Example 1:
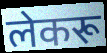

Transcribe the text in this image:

लेकरू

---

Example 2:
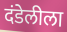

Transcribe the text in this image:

दंडेलीला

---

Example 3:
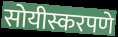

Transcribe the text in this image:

सोयीस्करपणे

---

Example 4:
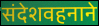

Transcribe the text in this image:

संदेशवहनाने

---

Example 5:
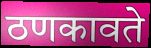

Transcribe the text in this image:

ठणकावते